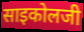
साइकोलजी